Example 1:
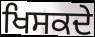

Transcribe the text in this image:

ਖਿਸਕਦੇ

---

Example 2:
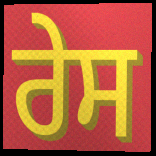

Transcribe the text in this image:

ਰੇਸ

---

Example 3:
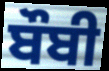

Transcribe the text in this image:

ਬੌਬੀ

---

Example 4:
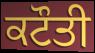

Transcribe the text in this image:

ਕਟੌਤੀ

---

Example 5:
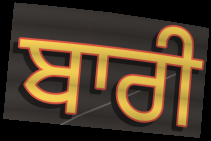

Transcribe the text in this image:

ਬਾਰੀ